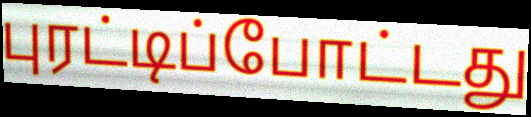
புரட்டிப்போட்டது